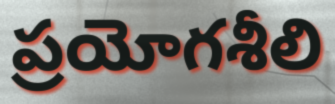
ప్రయోగశీలి